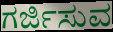
ಗರ್ಜಿಸುವ